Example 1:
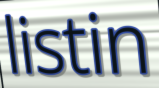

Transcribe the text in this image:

listin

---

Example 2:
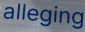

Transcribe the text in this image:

alleging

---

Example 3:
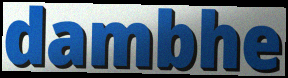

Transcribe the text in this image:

dambhe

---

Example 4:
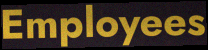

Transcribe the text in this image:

Employees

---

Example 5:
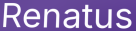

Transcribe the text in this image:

Renatus